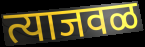
त्याजवळ